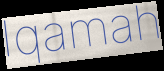
Iqamah